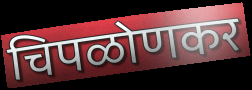
चिपळोणकर